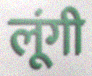
लूंगी